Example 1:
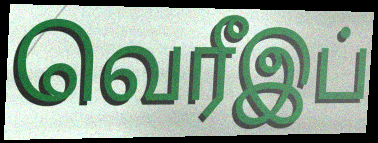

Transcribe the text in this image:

வெரீஇப்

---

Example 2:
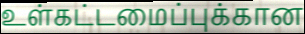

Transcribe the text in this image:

உள்கட்டமைப்புக்கான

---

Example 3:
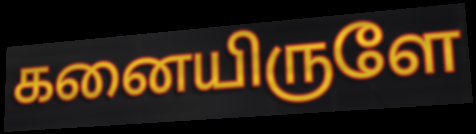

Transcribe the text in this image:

கனையிருளே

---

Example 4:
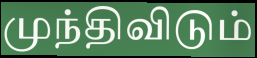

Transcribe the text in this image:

முந்திவிடும்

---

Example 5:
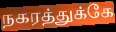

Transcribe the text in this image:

நகரத்துக்கே